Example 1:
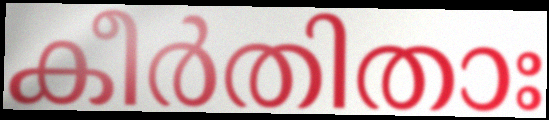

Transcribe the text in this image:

കീർതിതാഃ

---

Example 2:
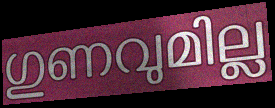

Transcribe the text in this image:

ഗുണവുമില്ല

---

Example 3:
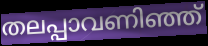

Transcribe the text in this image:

തലപ്പാവണിഞ്ഞ്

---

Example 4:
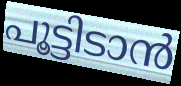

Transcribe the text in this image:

പൂട്ടിടാൻ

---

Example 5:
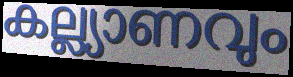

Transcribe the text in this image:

കല്ല്യാണവും